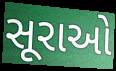
સૂરાઓ